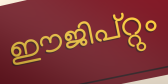
ഈജിപ്റ്റും